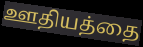
ஊதியத்தை